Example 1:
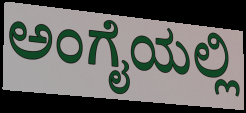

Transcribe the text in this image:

ಅಂಗೈಯಲ್ಲಿ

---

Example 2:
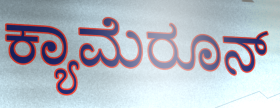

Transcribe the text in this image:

ಕ್ಯಾಮೆರೂನ್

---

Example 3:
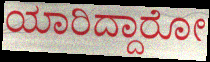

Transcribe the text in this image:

ಯಾರಿದ್ದಾರೋ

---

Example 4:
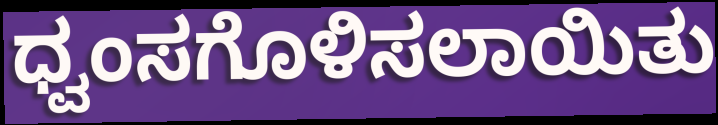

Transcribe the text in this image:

ಧ್ವಂಸಗೊಳಿಸಲಾಯಿತು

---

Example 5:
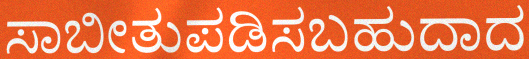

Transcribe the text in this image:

ಸಾಬೀತುಪಡಿಸಬಹುದಾದ